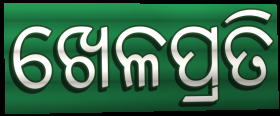
ଖେଳପ୍ରତି